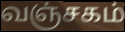
வஞ்சகம்